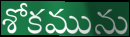
శోకమును